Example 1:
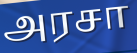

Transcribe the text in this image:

அரசா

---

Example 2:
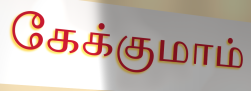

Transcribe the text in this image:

கேக்குமாம்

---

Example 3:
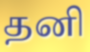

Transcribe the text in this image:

தனி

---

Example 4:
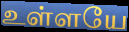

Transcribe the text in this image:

உள்ளயே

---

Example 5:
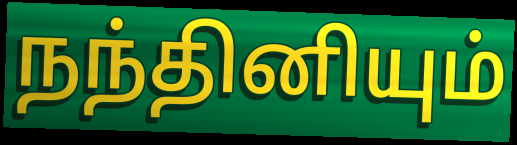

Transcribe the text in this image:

நந்தினியும்